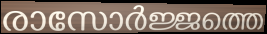
രാസോർജ്ജത്തെ